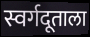
स्वर्गदूताला